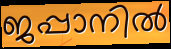
ജപ്പാനിൽ